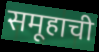
समूहाची